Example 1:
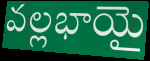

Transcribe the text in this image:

వల్లభాయై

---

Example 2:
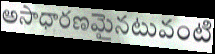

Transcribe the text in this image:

అసాధారణమైనటువంటి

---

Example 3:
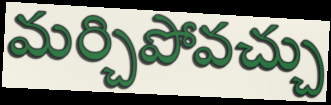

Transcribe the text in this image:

మర్చిపోవచ్చు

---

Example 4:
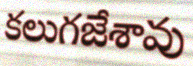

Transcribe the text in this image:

కలుగజేశావు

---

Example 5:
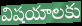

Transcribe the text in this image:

విషయాలకు